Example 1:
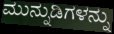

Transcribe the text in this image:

ಮುನ್ನುಡಿಗಳನ್ನು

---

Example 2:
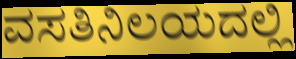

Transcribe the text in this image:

ವಸತಿನಿಲಯದಲ್ಲಿ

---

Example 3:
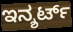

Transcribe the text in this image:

ಇನ್ಶರ್ಟ್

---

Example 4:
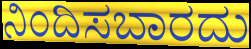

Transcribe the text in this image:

ನಿಂದಿಸಬಾರದು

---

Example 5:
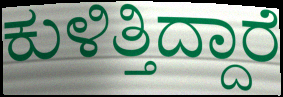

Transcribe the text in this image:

ಕುಳಿತ್ತಿದ್ದಾರೆ